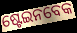
ଷ୍ଟେଇନବେକ